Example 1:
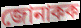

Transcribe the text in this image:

জোনাকক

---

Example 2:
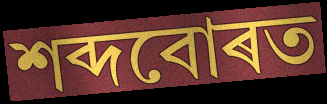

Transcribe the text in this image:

শব্দবোৰত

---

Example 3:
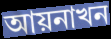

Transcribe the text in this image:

আয়নাখন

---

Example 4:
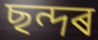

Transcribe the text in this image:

ছন্দৰ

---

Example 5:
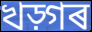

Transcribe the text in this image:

খড়্গৰ